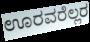
ಊರವರೆಲ್ಲರ